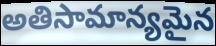
అతిసామాన్యమైన